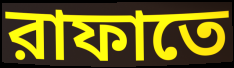
রাফাতে